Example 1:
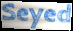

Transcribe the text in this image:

Seyed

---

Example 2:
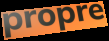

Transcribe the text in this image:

propre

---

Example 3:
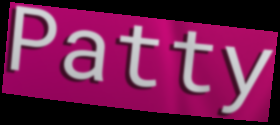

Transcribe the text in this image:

Patty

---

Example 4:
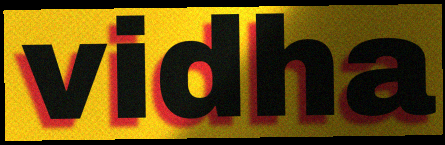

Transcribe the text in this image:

vidha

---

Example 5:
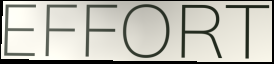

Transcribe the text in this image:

EFFORT